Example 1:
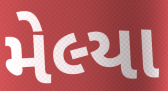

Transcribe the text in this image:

મેલ્યા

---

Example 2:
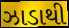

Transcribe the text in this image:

ઝાડાથી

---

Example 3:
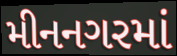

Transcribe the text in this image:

મીનનગરમાં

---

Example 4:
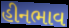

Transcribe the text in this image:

હીનભાવ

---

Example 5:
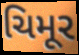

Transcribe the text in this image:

ચિમૂર